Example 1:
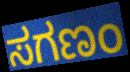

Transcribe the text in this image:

ಸಗಣಂ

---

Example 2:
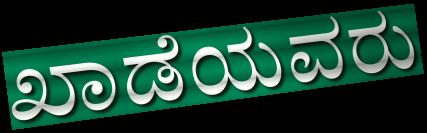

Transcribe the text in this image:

ಖಾಡೆಯವರು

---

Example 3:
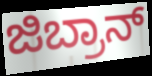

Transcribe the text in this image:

ಜಿಬ್ರಾನ್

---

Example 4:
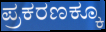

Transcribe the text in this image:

ಪ್ರಕರಣಕ್ಕೂ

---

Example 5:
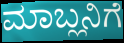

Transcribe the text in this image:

ಮಾಬ್ಲನಿಗೆ